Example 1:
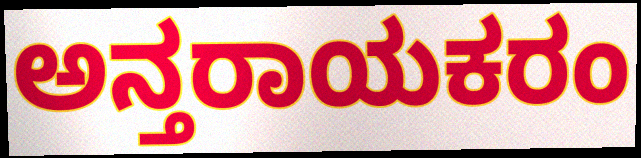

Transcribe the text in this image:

ಅನ್ತರಾಯಕರಂ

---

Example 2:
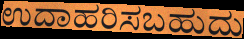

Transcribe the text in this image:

ಉದಾಹರಿಸಬಹುದು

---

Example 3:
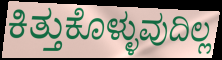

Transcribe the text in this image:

ಕಿತ್ತುಕೊಳ್ಳುವುದಿಲ್ಲ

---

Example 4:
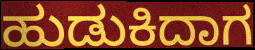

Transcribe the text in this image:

ಹುಡುಕಿದಾಗ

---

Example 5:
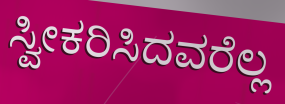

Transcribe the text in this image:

ಸ್ವೀಕರಿಸಿದವರೆಲ್ಲ